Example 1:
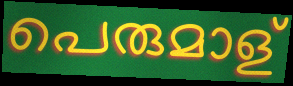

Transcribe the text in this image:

പെരുമാള്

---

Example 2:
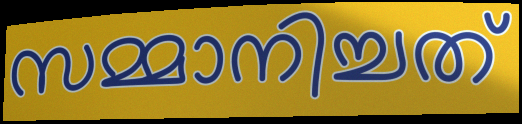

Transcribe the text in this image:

സമ്മാനിച്ചത്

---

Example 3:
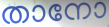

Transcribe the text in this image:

താനോ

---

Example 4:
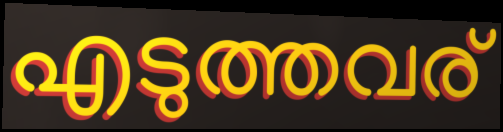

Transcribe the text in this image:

എടുത്തവര്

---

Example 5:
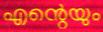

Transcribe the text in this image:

എന്റെയും